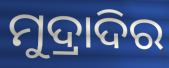
ମୁଦ୍ରାଦିର